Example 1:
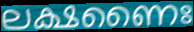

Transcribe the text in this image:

ലക്ഷണൈഃ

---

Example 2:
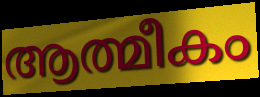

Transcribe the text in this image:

ആത്മീകം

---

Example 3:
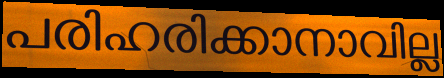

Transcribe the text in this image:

പരിഹരിക്കാനാവില്ല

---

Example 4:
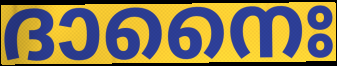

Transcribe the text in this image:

ദാനൈഃ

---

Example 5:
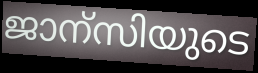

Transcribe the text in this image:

ജാന്സിയുടെ